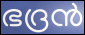
ഭദ്രൻ